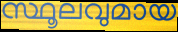
സ്ഥൂലവുമായ